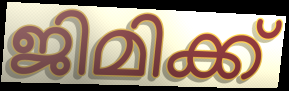
ജിമിക്ക്